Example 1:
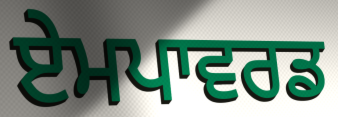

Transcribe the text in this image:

ਏਮਪਾਵਰਡ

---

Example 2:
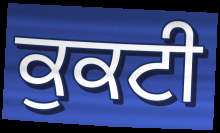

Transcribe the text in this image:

ਕੁਕਟੀ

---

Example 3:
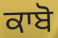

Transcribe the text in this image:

ਕਾਬੋ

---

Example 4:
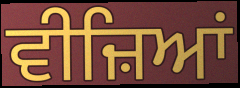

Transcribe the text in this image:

ਵੀਜ਼ਿਆਂ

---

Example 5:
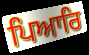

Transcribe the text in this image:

ਪਿਆਰਿ